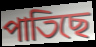
পাতিছে